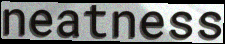
neatness